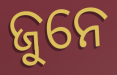
ଜୁନେ